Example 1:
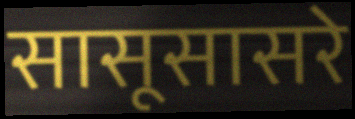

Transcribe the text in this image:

सासूसासरे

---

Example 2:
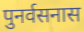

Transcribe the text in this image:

पुनर्वसनास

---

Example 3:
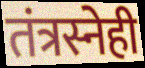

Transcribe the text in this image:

तंत्रस्नेही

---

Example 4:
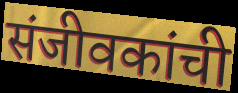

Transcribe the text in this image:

संजीवकांची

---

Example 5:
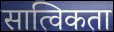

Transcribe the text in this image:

सात्विकता